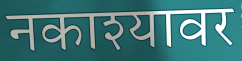
नकाश्यावर